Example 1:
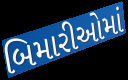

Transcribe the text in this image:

બિમારીઓમાં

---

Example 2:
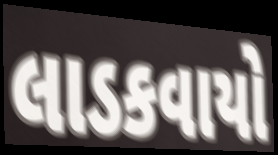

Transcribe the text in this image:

લાડકવાયો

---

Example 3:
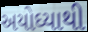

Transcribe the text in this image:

અયોઘ્યાથી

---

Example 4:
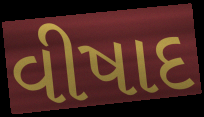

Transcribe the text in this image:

વીષાદ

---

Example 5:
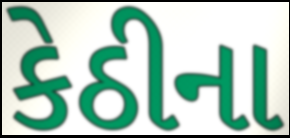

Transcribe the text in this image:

કેઠીના